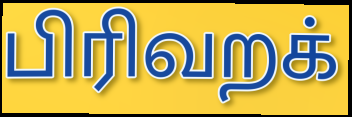
பிரிவறக்